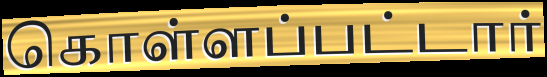
கொள்ளப்பட்டார்